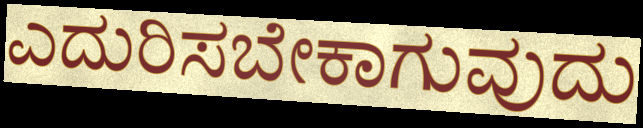
ಎದುರಿಸಬೇಕಾಗುವುದು